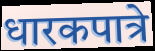
धारकपात्रे